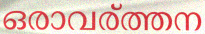
ഒരാവര്ത്തന